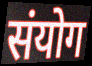
संयोग